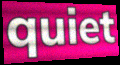
quiet